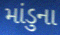
માંડુના